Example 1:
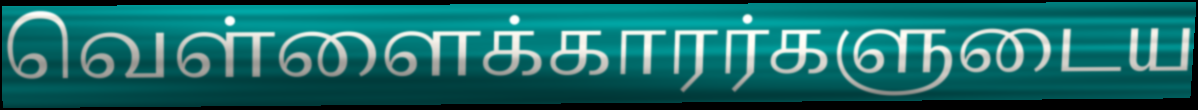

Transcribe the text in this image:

வெள்ளைக்காரர்களுடைய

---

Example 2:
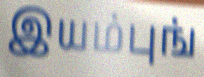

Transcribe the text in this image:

இயம்புங்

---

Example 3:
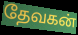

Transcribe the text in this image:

தேவகன்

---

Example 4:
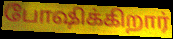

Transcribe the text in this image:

போஷிக்கிறார்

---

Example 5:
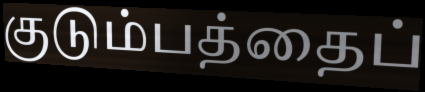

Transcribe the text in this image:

குடும்பத்தைப்